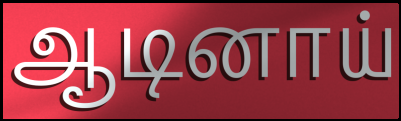
ஆடினாய்